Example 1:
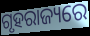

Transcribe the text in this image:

ଗୃହରାଜ୍ୟରେ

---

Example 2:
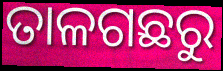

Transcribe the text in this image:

ତାଳଗଛରୁ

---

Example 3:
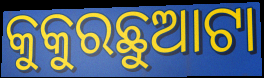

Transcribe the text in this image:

କୁକୁରଛୁଆଟା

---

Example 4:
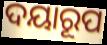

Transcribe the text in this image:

ଦୟାରୂପ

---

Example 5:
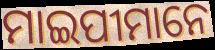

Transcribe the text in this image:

ମାଇପୀମାନେ